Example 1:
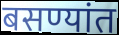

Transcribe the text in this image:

बसण्यांत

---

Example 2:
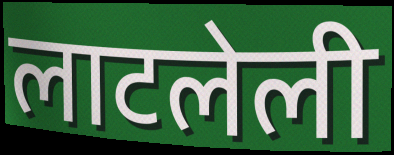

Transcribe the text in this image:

लाटलेली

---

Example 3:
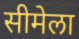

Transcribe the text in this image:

सीमेला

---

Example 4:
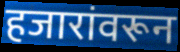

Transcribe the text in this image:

हजारांवरून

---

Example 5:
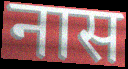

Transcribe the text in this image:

नास